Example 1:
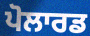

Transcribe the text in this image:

ਪੋਲਾਰਡ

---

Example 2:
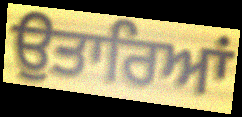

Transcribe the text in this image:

ਉਤਾਰਿਆਂ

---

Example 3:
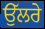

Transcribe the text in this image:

ਉੱਲਰੇ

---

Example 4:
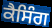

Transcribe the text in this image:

ਕੈਸਿੰਗ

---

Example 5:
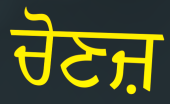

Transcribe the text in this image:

ਚੋਣਜ਼